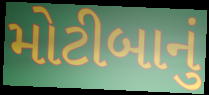
મોટીબાનું